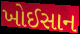
ખોઈસાન